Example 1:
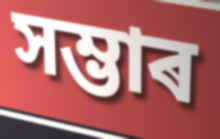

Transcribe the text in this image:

সম্ভাৰ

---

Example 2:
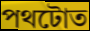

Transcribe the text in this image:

পথটোত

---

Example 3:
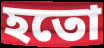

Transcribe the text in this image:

হতো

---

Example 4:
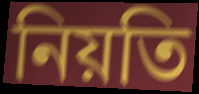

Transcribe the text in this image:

নিয়তি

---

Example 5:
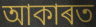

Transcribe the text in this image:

আকাৰত